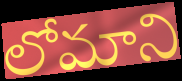
లోమాని